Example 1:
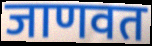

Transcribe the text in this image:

जाणवत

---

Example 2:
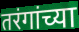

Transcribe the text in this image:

तरंगांच्या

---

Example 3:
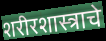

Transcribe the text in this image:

शरीरशास्त्राचे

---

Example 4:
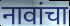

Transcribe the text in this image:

नावांचा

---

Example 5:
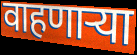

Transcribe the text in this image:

वाहणाऱ्या